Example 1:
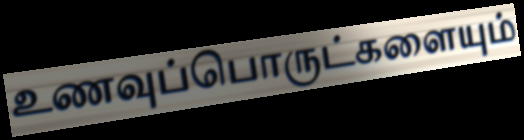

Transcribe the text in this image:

உணவுப்பொருட்களையும்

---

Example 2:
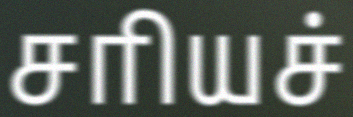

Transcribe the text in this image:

சரியச்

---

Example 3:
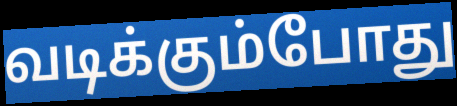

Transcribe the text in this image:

வடிக்கும்போது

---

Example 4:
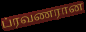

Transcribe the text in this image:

ப்ரவணரான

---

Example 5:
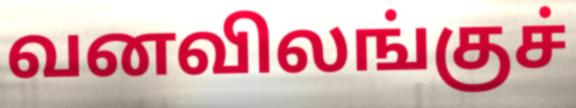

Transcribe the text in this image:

வனவிலங்குச்